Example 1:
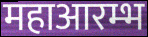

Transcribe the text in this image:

महाआरम्भ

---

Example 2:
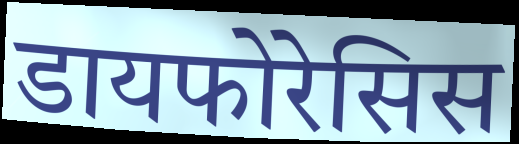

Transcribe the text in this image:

डायफोरेसिस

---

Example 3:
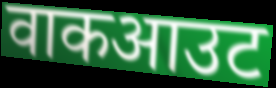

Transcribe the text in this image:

वाकआउट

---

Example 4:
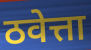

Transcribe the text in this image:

ठवेत्ता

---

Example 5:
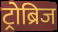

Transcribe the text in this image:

ट्रोब्रिज